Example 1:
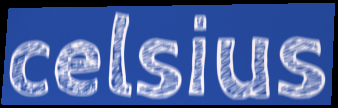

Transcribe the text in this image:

celsius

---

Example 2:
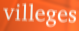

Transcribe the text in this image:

villeges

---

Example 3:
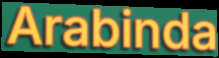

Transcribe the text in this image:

Arabinda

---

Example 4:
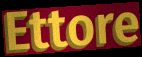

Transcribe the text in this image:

Ettore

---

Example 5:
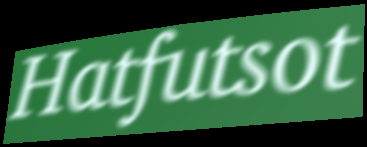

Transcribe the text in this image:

Hatfutsot